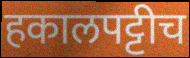
हकालपट्टीच